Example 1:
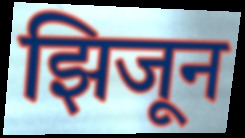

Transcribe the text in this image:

झिजून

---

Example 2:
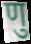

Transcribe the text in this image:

णु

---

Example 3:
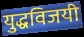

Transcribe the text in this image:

युद्धविजयी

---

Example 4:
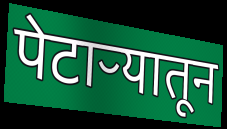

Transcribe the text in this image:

पेटाऱ्यातून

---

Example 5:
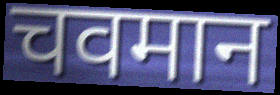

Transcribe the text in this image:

चवमान